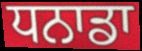
ਧਨਾਡਾ